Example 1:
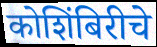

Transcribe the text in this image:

कोशिंबिरीचे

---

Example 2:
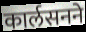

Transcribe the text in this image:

कार्लसनने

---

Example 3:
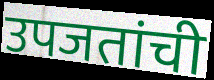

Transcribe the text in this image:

उपजतांची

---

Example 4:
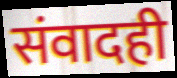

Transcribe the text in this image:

संवादही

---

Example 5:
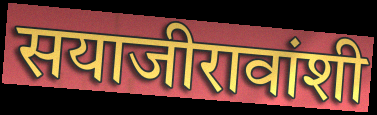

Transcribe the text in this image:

सयाजीरावांशी